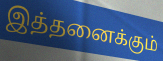
இத்தனைக்கும்